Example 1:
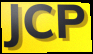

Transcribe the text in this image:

JCP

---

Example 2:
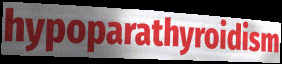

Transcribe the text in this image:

hypoparathyroidism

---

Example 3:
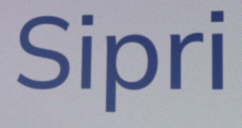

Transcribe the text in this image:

Sipri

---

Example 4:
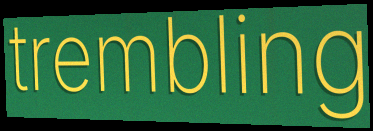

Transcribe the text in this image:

trembling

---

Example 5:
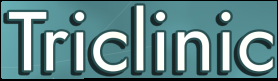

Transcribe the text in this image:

Triclinic